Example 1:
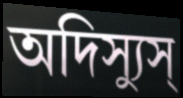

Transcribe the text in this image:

অদিস্যুস্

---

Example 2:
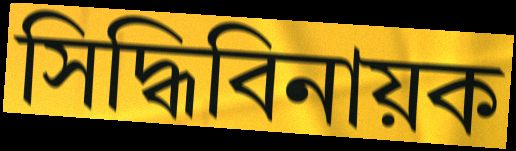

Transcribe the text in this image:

সিদ্ধিবিনায়ক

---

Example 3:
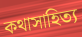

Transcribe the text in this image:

কথাসাহিত্য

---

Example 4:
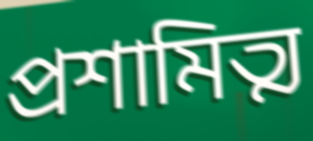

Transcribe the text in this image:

প্রশামিত্ম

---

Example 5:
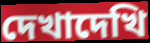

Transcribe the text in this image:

দেখাদেখি